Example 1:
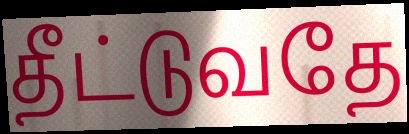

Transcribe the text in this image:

தீட்டுவதே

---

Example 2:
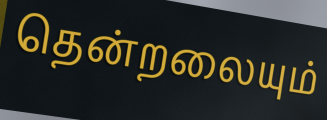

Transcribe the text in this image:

தென்றலையும்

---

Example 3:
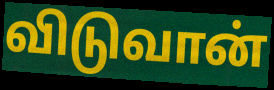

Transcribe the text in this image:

விடுவான்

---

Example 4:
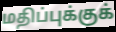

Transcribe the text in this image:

மதிப்புக்குக்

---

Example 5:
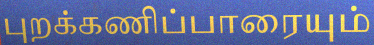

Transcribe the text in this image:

புறக்கணிப்பாரையும்